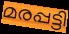
മരപ്പട്ടി